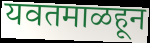
यवतमाळहून